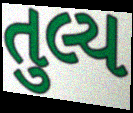
તુલ્ય